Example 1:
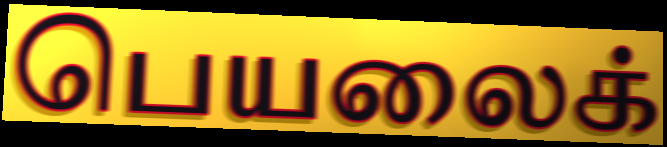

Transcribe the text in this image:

பெயலைக்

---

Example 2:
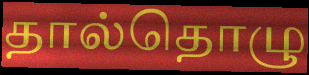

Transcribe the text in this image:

தால்தொழு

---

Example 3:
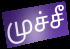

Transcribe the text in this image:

முச்சீ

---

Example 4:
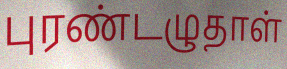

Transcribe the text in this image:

புரண்டழுதாள்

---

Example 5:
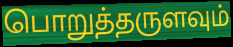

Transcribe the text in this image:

பொறுத்தருளவும்